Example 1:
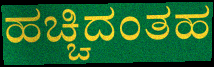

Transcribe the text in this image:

ಹಚ್ಚಿದಂತಹ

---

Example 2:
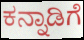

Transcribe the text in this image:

ಕನ್ನಾಡಿಗೆ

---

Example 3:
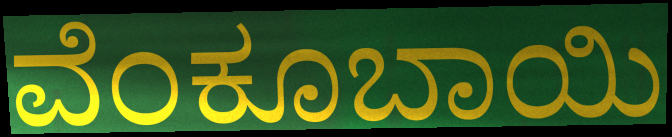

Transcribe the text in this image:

ವೆಂಕೂಬಾಯಿ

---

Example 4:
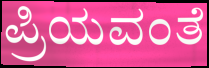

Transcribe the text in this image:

ಪ್ರಿಯವಂತೆ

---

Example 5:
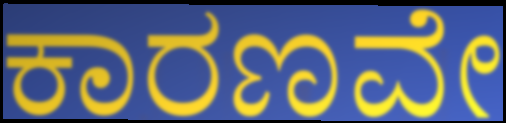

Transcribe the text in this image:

ಕಾರಣವೇ